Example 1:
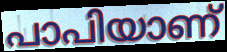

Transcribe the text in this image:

പാപിയാണ്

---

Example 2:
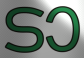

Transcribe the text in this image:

ടാ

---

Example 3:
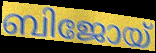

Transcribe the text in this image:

ബിജോയ്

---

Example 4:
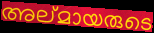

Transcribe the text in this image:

അല്മായരുടെ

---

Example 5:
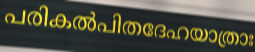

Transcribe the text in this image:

പരികൽപിതദേഹയാത്രാഃ